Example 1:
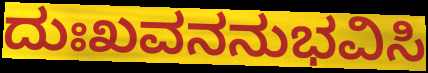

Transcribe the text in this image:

ದುಃಖವನನುಭವಿಸಿ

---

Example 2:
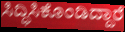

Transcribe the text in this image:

ಸಿದ್ಧಿಸಿಕೊಂಡಿದ್ದಾರೆ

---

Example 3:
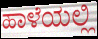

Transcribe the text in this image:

ಹಾಳೆಯಲ್ಲಿ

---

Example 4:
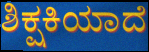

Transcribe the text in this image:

ಶಿಕ್ಷಕಿಯಾದೆ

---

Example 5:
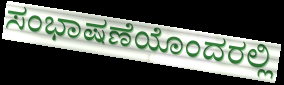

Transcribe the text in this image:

ಸಂಭಾಷಣೆಯೊಂದರಲ್ಲಿ